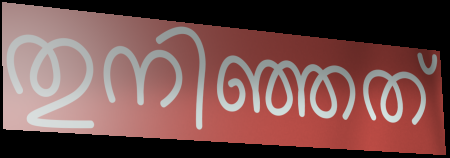
തുനിഞ്ഞത്